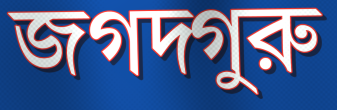
জগদ্গুরু